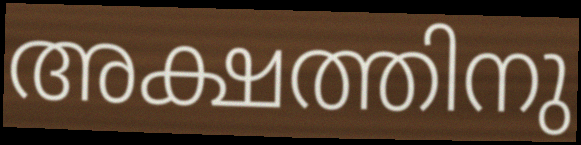
അക്ഷത്തിനു